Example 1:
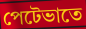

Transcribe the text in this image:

পেটেভাতে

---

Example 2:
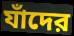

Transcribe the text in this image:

যাঁদের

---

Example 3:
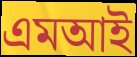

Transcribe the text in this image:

এমআই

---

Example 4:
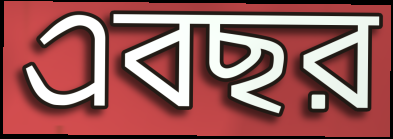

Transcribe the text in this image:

এবছর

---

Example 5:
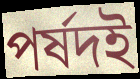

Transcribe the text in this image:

পর্ষদই